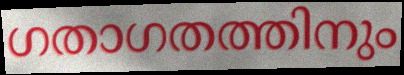
ഗതാഗതത്തിനും